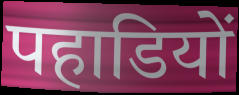
पहाडियों